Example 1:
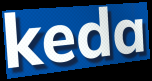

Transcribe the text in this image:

keda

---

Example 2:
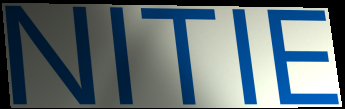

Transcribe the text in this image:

NITIE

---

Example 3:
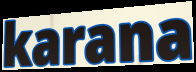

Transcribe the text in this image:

karana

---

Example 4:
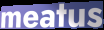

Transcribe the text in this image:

meatus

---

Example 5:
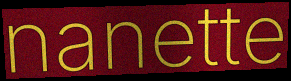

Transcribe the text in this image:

nanette